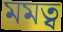
মমত্ব